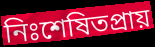
নিঃশেষিতপ্রায়